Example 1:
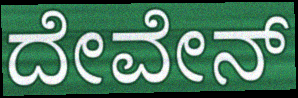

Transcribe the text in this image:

ದೇವೇನ್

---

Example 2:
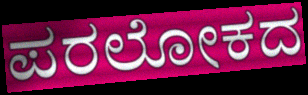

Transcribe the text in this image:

ಪರಲೋಕದ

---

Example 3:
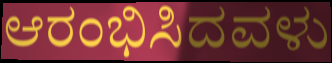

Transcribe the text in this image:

ಆರಂಭಿಸಿದವಳು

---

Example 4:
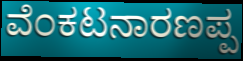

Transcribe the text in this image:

ವೆಂಕಟನಾರಣಪ್ಪ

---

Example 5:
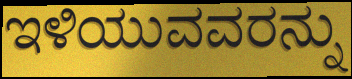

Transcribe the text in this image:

ಇಳಿಯುವವರನ್ನು